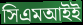
সিএমআইই